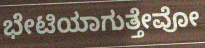
ಭೇಟಿಯಾಗುತ್ತೇವೋ